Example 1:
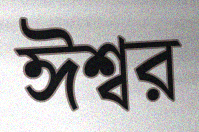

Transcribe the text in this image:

ঈশ্বর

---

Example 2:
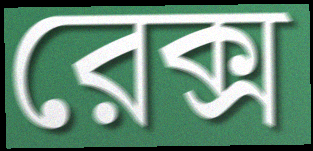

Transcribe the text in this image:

রেক্স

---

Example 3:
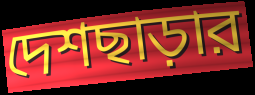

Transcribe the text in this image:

দেশছাড়ার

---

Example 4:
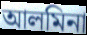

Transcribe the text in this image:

আলমিনা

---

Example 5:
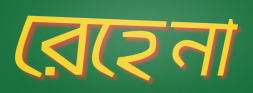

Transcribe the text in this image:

রেহেনা